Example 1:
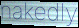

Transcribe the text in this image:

nakedly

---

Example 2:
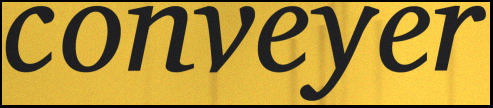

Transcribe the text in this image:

conveyer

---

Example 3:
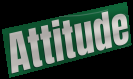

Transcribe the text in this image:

Attitude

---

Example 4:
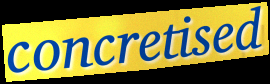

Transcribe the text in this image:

concretised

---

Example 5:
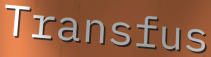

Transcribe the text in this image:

Transfus